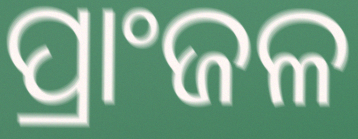
ପ୍ରାଂଜଳ